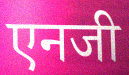
एनजी